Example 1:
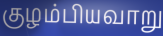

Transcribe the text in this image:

குழம்பியவாறு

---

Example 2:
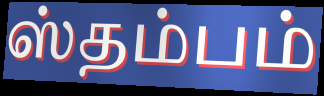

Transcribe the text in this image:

ஸ்தம்பம்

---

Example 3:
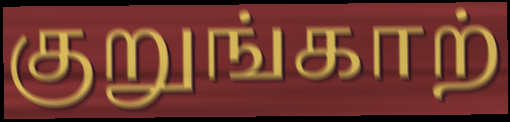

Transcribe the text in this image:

குறுங்காற்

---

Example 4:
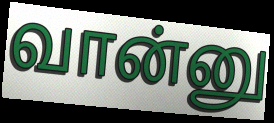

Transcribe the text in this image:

வான்னு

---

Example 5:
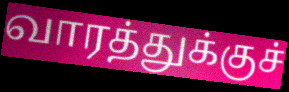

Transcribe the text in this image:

வாரத்துக்குச்